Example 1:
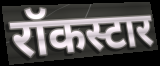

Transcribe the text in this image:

रॉकस्टार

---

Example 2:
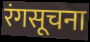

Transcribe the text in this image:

रंगसूचना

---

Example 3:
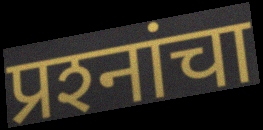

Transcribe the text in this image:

प्रश्‍नांचा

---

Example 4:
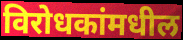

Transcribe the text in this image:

विरोधकांमधील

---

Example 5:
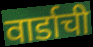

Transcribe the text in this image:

वार्डाची